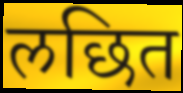
लछित